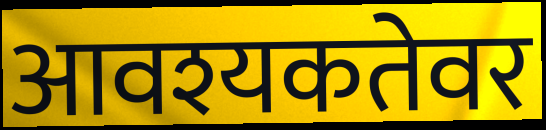
आवश्यकतेवर